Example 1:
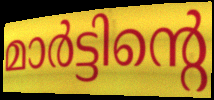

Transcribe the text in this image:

മാർട്ടിന്റെ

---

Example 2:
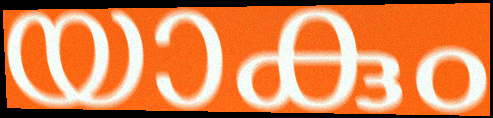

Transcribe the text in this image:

യാകും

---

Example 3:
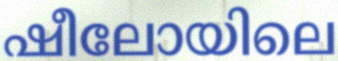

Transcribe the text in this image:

ഷീലോയിലെ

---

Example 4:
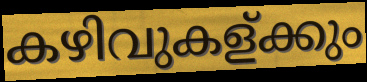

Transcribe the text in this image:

കഴിവുകള്ക്കും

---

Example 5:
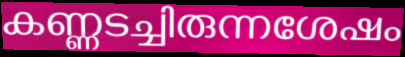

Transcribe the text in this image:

കണ്ണടച്ചിരുന്നശേഷം